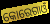
କୋରେଗାଓଁ